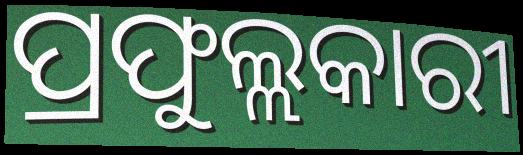
ପ୍ରଫୁଲ୍ଲକାରୀ